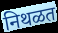
निथळत